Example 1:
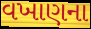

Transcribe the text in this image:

વખાણના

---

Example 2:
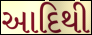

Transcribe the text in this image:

આદિથી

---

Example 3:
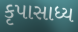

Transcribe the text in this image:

કૃપાસાધ્ય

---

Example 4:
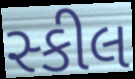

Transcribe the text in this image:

સ્કીલ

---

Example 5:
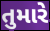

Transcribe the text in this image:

તુમારે